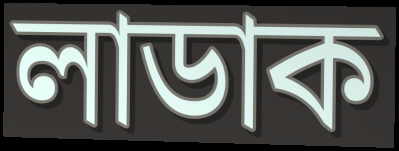
লাডাক